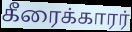
கீரைக்காரர்